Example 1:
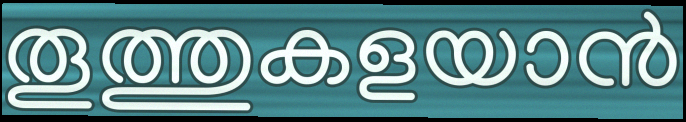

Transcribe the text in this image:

തൂത്തുകളയാൻ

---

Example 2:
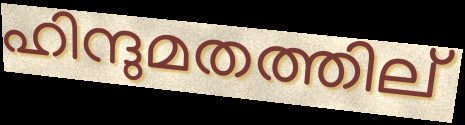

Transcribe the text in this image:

ഹിന്ദുമതത്തില്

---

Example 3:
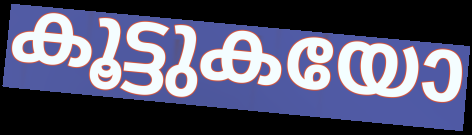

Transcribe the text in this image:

കൂട്ടുകയോ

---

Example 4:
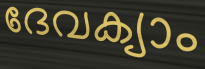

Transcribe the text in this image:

ദേവക്യാം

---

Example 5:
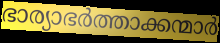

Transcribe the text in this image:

ഭാര്യാഭർത്താക്കന്മാർ